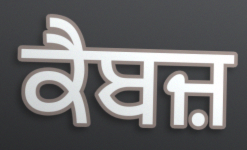
ਕੈਬਜ਼